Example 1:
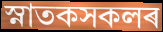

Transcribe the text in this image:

স্নাতকসকলৰ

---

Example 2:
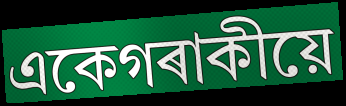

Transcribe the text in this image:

একেগৰাকীয়ে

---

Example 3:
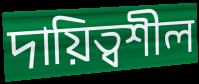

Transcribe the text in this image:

দায়িত্বশীল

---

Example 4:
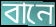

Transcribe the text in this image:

বানে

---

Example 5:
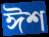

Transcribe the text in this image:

ঈশ